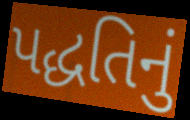
પદ્ધતિનું